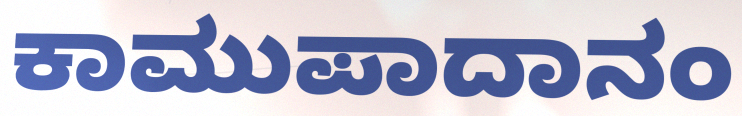
ಕಾಮುಪಾದಾನಂ